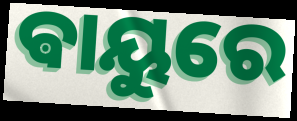
ଵାୟୁରେ